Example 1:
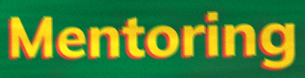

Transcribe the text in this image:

Mentoring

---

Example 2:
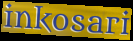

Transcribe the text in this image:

inkosari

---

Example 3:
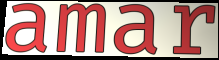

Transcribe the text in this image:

amar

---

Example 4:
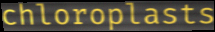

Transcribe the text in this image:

chloroplasts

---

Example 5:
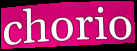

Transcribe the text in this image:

chorio